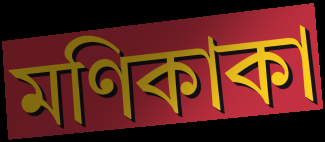
মণিকাকা